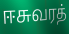
ஈசுவரத்